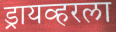
ड्रायव्हरला